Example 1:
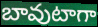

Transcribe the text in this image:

బావుటాగా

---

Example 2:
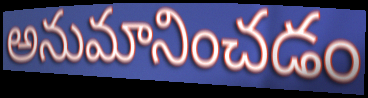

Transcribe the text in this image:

అనుమానించడం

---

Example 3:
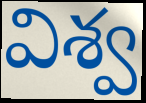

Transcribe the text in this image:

విశ్వ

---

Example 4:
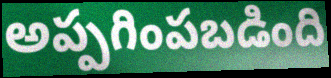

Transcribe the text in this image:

అప్పగింపబడింది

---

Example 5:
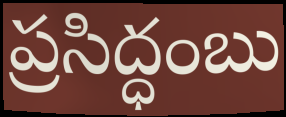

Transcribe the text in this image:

ప్రసిద్ధంబు